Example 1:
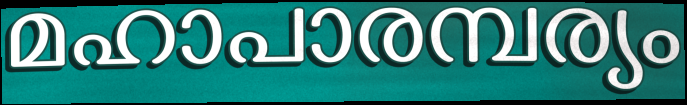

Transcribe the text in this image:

മഹാപാരമ്പര്യം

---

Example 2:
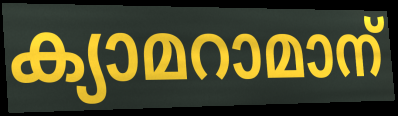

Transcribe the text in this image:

ക്യാമറാമാന്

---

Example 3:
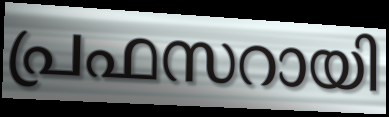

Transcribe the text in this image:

പ്രഫസറായി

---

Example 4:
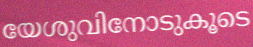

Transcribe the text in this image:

യേശുവിനോടുകൂടെ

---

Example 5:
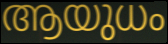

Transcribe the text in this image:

ആയുധം